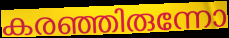
കരഞ്ഞിരുന്നോ